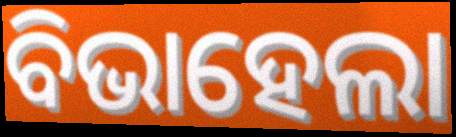
ବିଭାହେଲା